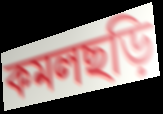
কমলছড়ি